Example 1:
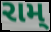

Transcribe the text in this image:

રામ્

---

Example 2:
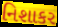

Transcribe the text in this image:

નિશાકર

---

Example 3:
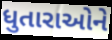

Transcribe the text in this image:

ધુતારાઓને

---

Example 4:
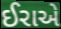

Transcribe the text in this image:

ઈરાએ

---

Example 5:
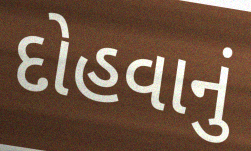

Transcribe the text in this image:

દોહવાનું